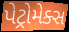
પેટ્રોમેક્સ